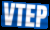
VTEP